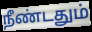
நீண்டதும்